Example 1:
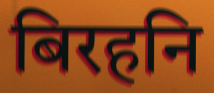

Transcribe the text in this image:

बिरहनि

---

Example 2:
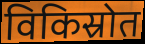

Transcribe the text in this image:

विकिस्रोत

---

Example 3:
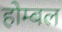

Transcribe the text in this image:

होम्बल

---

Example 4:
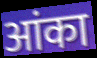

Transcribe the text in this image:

आंका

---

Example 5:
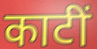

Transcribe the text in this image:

काटीं